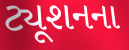
ટ્યૂશનના